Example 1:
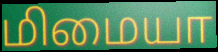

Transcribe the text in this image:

மிமையா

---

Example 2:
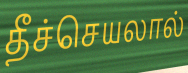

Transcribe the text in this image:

தீச்செயலால்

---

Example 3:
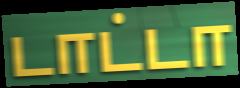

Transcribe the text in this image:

டாட்டா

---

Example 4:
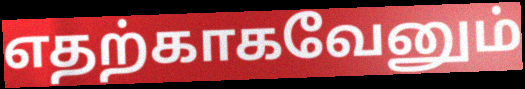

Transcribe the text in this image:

எதற்காகவேனும்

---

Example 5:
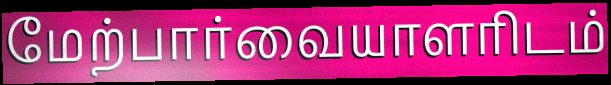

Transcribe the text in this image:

மேற்பார்வையாளரிடம்